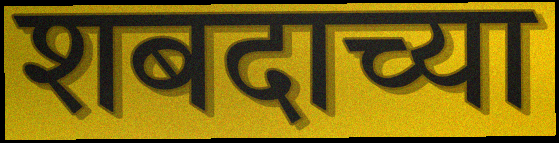
शबदाच्या